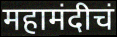
महामंदीचं